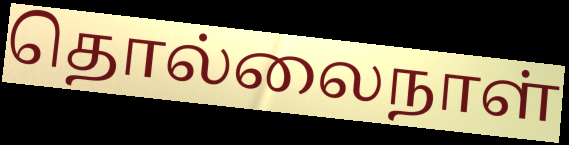
தொல்லைநாள்